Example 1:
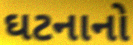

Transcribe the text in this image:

ઘટનાનો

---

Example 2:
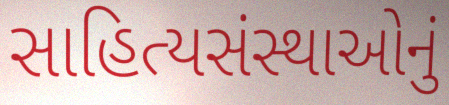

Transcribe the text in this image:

સાહિત્યસંસ્થાઓનું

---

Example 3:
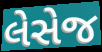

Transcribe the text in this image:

લેસેજ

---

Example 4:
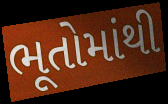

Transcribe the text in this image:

ભૂતોમાંથી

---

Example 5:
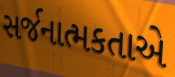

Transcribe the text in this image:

સર્જનાત્મકતાએ